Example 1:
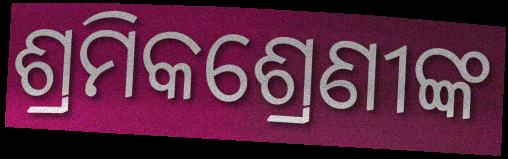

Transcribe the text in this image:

ଶ୍ରମିକଶ୍ରେଣୀଙ୍କ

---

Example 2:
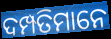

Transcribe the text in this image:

ଦମ୍ପତିମାନେ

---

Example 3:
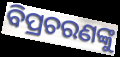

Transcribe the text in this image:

ବିପ୍ରଚରଣଙ୍କୁ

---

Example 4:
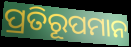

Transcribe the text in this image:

ପ୍ରତିରୂପମାନ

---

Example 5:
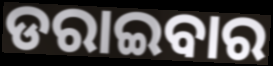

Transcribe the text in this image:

ଡରାଇବାର